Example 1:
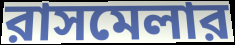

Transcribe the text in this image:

রাসমেলার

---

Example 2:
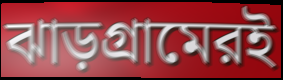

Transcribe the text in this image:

ঝাড়গ্রামেরই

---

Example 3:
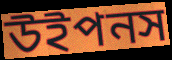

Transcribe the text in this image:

উইপনস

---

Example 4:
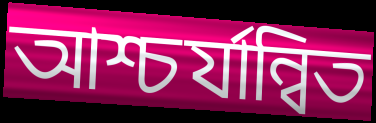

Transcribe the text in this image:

আশ্চর্যান্বিত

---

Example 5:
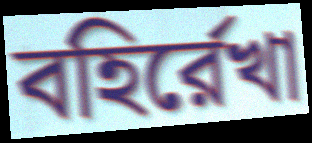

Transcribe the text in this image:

বহির্রেখা